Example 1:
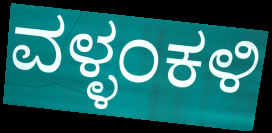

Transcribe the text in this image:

ವಳ್ಳಂಕಳಿ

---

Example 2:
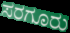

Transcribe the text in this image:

ಸರಗೂರು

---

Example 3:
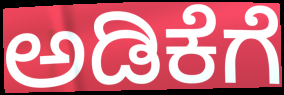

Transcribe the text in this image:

ಅಡಿಕೆಗೆ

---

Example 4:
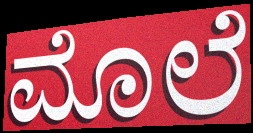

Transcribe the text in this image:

ಮೊಲೆ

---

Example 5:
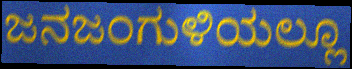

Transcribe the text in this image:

ಜನಜಂಗುಳಿಯಲ್ಲೂ